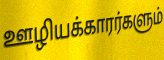
ஊழியக்காரர்களும்